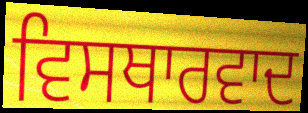
ਵਿਸਥਾਰਵਾਦ